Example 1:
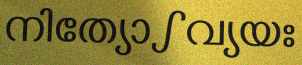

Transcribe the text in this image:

നിത്യോഽവ്യയഃ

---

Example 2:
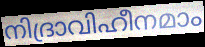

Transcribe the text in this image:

നിദ്രാവിഹീനമാം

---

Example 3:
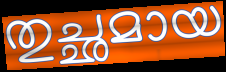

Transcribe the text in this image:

തുച്ഛമായ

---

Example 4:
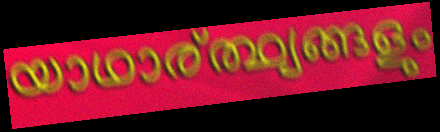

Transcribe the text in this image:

യാഥാര്ത്ഥ്യങ്ങളും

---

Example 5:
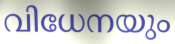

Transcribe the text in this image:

വിധേനയും